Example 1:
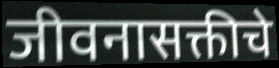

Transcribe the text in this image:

जीवनासक्तीचे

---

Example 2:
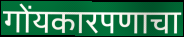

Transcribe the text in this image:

गोंयकारपणाचा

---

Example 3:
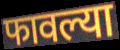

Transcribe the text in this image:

फावल्या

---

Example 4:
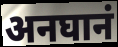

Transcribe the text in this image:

अनघानं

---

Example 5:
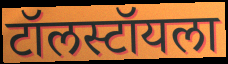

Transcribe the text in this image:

टॉलस्टॉयला